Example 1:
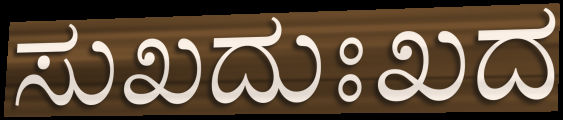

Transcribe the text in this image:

ಸುಖದುಃಖದ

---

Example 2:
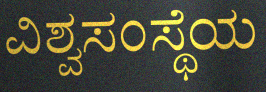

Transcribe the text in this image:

ವಿಶ್ವಸಂಸ್ಥೆಯ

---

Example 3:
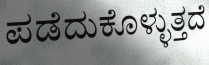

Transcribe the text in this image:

ಪಡೆದುಕೊಳ್ಳುತ್ತದೆ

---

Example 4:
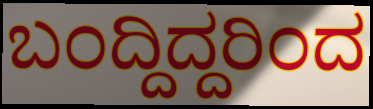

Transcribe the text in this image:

ಬಂದ್ದಿದ್ದರಿಂದ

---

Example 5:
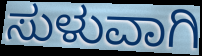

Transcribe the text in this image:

ಸುಳುವಾಗಿ